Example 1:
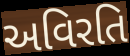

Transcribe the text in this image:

અવિરતિ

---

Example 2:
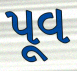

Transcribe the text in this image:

પૂવ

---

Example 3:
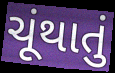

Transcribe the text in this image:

ચૂંથાતું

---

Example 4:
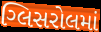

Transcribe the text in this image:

ગ્લિસરોલમાં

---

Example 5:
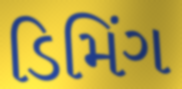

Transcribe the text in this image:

ડિમિંગ